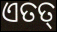
ଏତତ୍